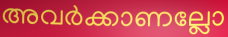
അവർക്കാണല്ലോ